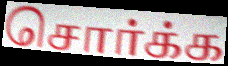
சொர்க்க